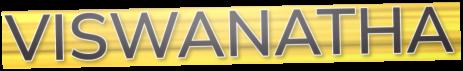
VISWANATHA